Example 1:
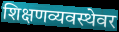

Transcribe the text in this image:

शिक्षणव्यवस्थेवर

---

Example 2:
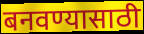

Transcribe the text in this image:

बनवण्यासाठी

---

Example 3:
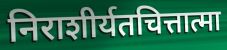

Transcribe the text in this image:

निराशीर्यतचित्तात्मा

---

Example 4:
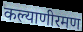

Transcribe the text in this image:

कल्याणीरमण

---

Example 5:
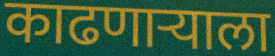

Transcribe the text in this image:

काढणार्‍याला